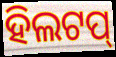
ହିଲଟପ୍